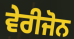
ਵੇਰੀਜੋਨ